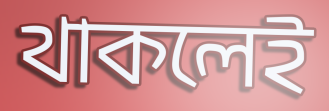
থাকলেই